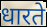
धारते